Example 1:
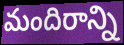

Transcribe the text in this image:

మందిరాన్ని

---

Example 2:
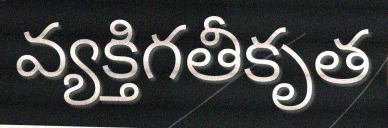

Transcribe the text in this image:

వ్యక్తిగతీకృత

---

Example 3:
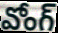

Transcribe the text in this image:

వోంగ్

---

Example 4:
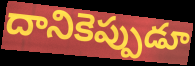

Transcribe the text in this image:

దానికెప్పుడూ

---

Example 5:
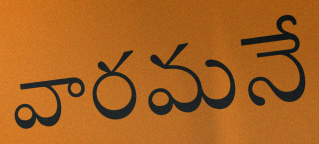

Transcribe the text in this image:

వారమనే